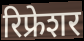
रिफ्रेशर